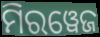
ମିରୱେଜ